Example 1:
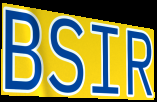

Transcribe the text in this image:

BSIR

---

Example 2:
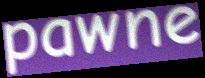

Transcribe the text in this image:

pawne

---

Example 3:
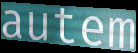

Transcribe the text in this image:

autem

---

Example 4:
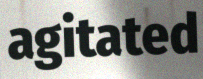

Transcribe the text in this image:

agitated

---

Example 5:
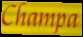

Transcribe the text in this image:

Champa